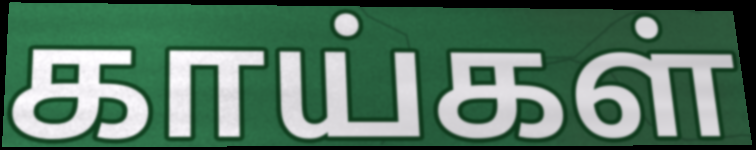
காய்கள்